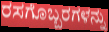
ರಸಗೊಬ್ಬರಗಳನ್ನು